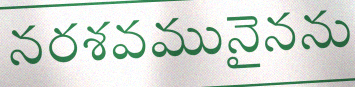
నరశవమునైనను